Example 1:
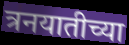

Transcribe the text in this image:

त्रनयातीच्या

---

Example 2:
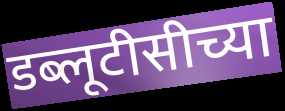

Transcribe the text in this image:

डब्लूटीसीच्या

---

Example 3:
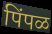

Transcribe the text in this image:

पिंपळ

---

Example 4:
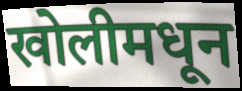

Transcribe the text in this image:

खोलीमधून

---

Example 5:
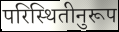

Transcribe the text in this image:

परिस्थितीनुरूप